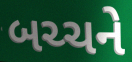
બચ્ચને